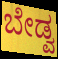
ಬೇಡ್ವ